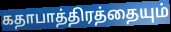
கதாபாத்திரத்தையும்